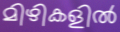
മിഴികളിൽ